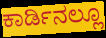
ಕಾರ್ಡಿನಲ್ಲೂ